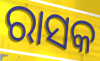
ରାସକ